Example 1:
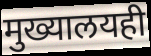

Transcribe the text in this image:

मुख्यालयही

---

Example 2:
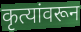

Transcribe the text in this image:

कृत्यांवरून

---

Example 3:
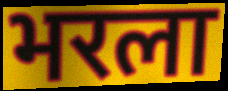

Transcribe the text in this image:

भरला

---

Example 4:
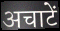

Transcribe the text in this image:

अचाटें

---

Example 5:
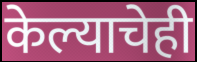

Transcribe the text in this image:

केल्याचेही